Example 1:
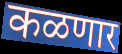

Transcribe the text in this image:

कळणार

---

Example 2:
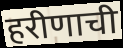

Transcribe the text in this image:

हरीणाची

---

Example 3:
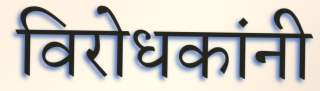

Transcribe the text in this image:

विरोधकांनी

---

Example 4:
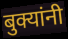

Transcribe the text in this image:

बुक्यांनी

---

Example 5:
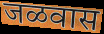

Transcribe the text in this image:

जळवास